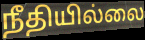
நீதியில்லை